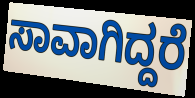
ಸಾವಾಗಿದ್ದರೆ